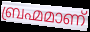
ബ്രഹ്മമാണ്